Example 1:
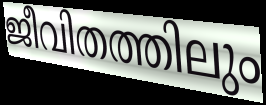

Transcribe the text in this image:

ജീവിതത്തിലും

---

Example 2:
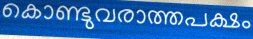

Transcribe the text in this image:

കൊണ്ടുവരാത്തപക്ഷം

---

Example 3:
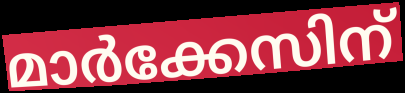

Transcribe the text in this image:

മാർക്കേസിന്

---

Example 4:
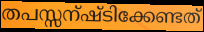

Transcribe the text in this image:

തപസ്സന്ഷ്ടിക്കേണ്ടത്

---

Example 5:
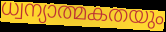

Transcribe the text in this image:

ധ്വന്യാത്മകതയും